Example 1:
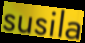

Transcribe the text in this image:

susila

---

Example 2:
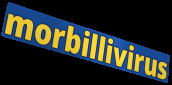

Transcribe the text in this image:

morbillivirus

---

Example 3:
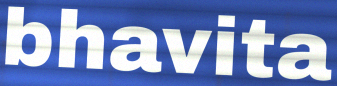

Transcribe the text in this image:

bhavita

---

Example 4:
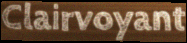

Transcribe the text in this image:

Clairvoyant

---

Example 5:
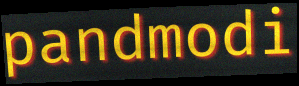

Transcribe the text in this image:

pandmodi